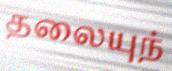
தலையுந்